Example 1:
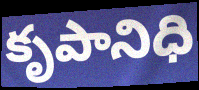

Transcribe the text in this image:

కృపానిధి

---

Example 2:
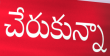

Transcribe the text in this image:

చేరుకున్నా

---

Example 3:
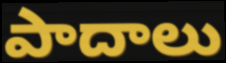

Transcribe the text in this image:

పాదాలు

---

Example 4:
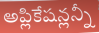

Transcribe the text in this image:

అప్లికేషన్లన్నీ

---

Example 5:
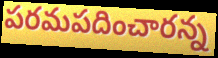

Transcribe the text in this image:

పరమపదించారన్న